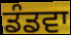
ਡੰਡਵਾ